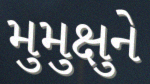
મુમુક્ષુને